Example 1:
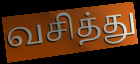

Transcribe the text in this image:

வசித்து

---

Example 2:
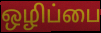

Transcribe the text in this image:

ஒழிப்பை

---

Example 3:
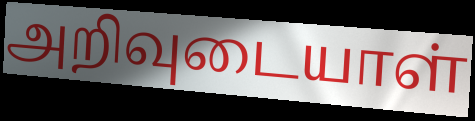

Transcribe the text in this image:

அறிவுடையாள்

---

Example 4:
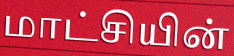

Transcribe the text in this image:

மாட்சியின்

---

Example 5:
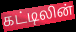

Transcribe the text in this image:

கட்டிலின்